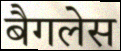
बैगलेस